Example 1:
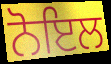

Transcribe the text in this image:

ਨੋਇਲ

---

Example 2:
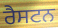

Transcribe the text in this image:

ਰੈਸਟਨ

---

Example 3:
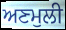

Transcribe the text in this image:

ਅਣਮੁਲੀ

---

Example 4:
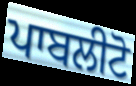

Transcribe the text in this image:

ਪਾਬਲੀਟੋ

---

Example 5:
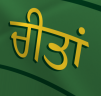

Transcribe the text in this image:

ਚੀਤਾਂ